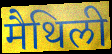
मैथिली